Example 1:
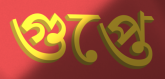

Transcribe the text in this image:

গুপ্তে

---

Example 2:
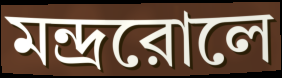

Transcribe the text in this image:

মন্দ্ররোলে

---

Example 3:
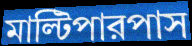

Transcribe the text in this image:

মাল্টিপারপাস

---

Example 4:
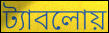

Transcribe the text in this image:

ট্যাবলোয়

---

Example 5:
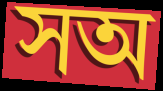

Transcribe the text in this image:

সঅ